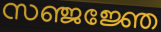
സഞ്ജജ്ഞേ